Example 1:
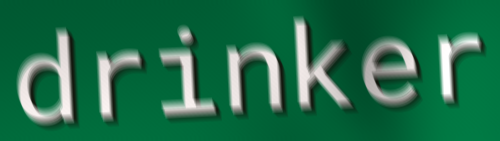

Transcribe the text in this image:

drinker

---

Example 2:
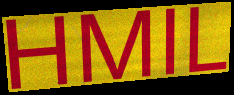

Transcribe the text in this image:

HMIL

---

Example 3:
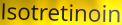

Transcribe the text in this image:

Isotretinoin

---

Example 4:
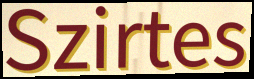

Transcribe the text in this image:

Szirtes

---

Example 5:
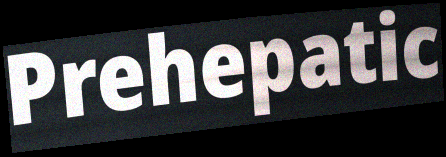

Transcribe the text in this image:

Prehepatic